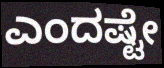
ಎಂದಷ್ಟೇ